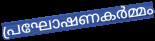
പ്രഘോഷണകർമ്മം